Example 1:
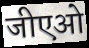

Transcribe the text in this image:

जीएओ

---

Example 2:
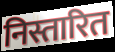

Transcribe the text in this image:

निस्तारित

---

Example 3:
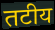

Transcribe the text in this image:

तटीय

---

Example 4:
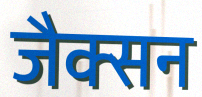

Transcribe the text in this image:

जैक्सन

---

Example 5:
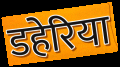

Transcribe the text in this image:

डहेरिया